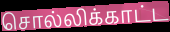
சொல்லிக்காட்ட